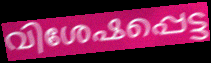
വിശേഷപ്പെട്ട